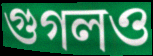
গুগলও